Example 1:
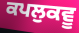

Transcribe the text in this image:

ਕਪਲੁਕਵੂ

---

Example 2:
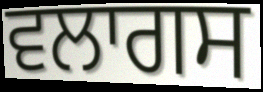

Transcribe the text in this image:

ਵਲਾਗਸ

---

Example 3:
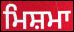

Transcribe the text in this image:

ਮਿਸ਼ਮਾ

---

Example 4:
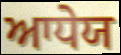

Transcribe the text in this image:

ਆਧੇਯ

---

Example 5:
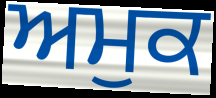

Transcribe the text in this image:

ਅਮੁਕ